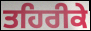
ਤਹਿਰੀਕੇ